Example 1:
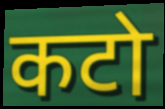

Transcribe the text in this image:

कटो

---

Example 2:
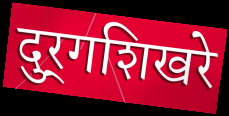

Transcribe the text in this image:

दुर्गशिखरे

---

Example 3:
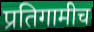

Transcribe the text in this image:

प्रतिगामीच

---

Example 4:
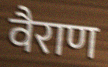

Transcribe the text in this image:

वैराण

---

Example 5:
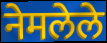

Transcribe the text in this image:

नेमलेले